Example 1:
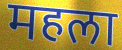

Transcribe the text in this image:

महला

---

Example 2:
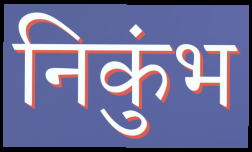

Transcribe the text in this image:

निकुंभ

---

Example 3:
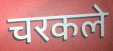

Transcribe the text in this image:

चरकले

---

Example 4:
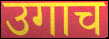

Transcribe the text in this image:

उगाच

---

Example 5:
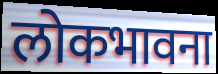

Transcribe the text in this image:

लोकभावना